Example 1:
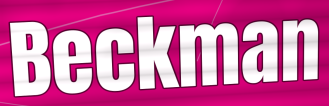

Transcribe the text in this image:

Beckman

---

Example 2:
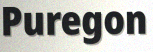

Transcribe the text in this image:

Puregon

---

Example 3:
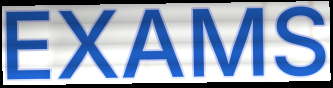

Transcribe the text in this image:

EXAMS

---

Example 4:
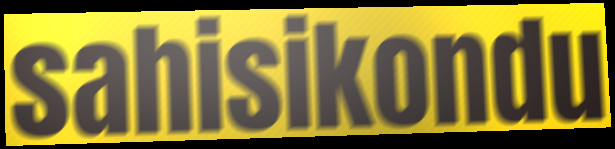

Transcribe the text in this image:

sahisikondu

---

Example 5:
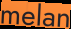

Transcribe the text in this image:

melan